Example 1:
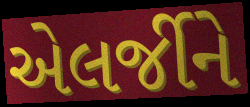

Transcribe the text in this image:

એલર્જીને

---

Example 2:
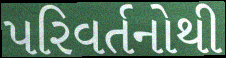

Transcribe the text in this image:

પરિવર્તનોથી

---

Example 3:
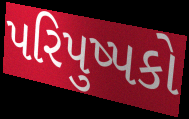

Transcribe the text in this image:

પરિપુષ્પકો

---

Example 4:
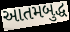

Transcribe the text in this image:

આતમબુદ્ધ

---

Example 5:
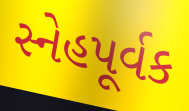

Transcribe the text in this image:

સ્નેહપૂર્વક